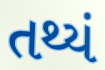
તથ્યં